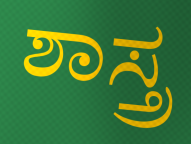
ಶಾಸ್ತ್ರ